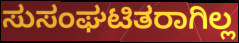
ಸುಸಂಘಟಿತರಾಗಿಲ್ಲ